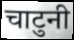
चाटुनी